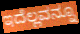
ಇದೆಲ್ಲವನ್ನೂ